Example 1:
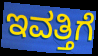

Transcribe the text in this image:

ಇವತ್ತಿಗೆ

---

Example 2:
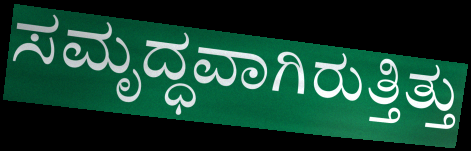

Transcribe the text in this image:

ಸಮೃದ್ಧವಾಗಿರುತ್ತಿತ್ತು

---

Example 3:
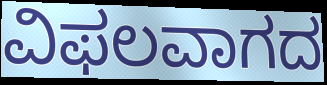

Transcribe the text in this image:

ವಿಫಲವಾಗದ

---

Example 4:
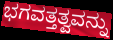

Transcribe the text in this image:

ಭಗವತ್ತತ್ವವನ್ನು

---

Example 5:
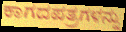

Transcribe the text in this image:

ಕಾಗದಪತ್ರಗಳನ್ನು